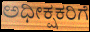
ಅಧೀಕ್ಷಕರಿಗೆ